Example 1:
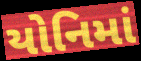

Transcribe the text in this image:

યોનિમાં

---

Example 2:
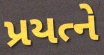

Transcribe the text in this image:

પ્રયત્ને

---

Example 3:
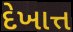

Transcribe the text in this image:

દેખાત્ત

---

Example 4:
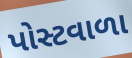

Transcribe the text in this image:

પોસ્ટવાળા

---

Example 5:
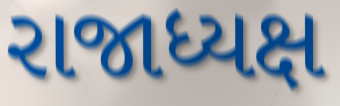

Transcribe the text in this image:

રાજાધ્યક્ષ